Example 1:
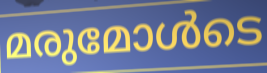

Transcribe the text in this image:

മരുമോൾടെ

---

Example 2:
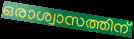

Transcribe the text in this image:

ഒരാശ്വാസത്തിന്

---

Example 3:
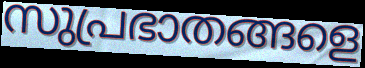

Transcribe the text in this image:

സുപ്രഭാതങ്ങളെ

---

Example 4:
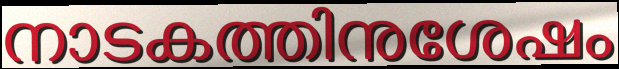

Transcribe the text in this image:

നാടകത്തിനുശേഷം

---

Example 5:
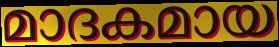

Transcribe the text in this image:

മാദകമായ